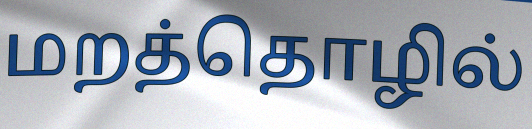
மறத்தொழில்